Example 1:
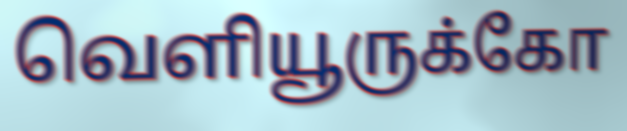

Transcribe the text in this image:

வெளியூருக்கோ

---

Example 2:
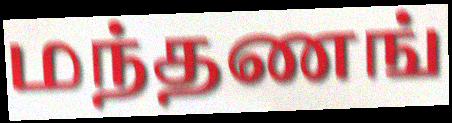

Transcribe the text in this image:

மந்தணங்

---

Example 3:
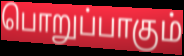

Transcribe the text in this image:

பொறுப்பாகும்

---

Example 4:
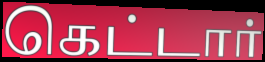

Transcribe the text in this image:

கெட்டார்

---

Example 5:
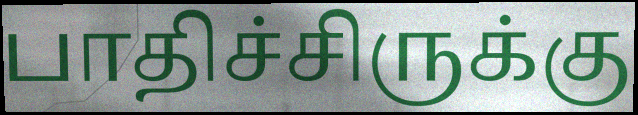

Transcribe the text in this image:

பாதிச்சிருக்கு